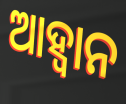
ଆହ୍ୱାନ